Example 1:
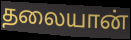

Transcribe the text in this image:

தலையான்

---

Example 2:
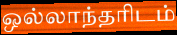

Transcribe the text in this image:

ஒல்லாந்தரிடம்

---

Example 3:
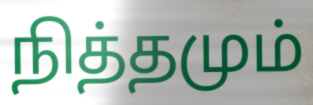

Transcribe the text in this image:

நித்தமும்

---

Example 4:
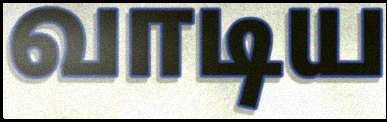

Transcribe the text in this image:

வாடிய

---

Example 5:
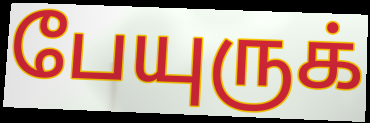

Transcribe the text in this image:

பேயுருக்